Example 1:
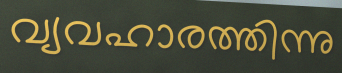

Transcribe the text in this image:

വ്യവഹാരത്തിന്നു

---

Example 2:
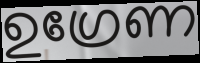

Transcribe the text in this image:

ഉഗ്രേണ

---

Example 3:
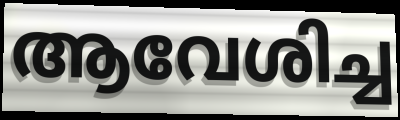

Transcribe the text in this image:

ആവേശിച്ച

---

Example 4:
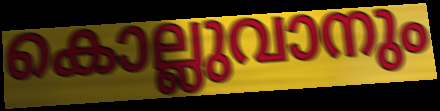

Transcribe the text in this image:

കൊല്ലുവാനും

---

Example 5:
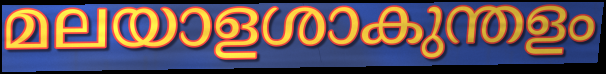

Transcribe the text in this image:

മലയാളശാകുന്തളം